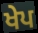
ਖੇਪ